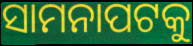
ସାମନାପଟକୁ